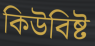
কিউবিষ্ট